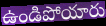
ఉండిపోయారు